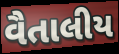
વૈતાલીય